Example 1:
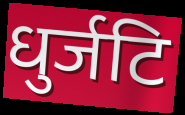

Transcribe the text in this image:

धुर्जटि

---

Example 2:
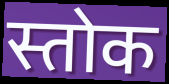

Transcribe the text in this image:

स्तोक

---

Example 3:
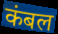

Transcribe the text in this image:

कंबल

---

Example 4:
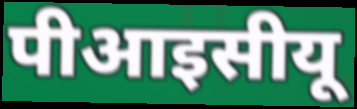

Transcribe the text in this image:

पीआइसीयू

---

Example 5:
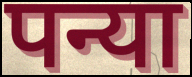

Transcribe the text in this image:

पन्या